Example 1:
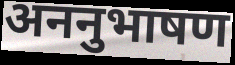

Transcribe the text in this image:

अननुभाषण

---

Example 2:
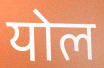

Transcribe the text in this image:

योल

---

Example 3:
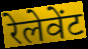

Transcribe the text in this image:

रेलेवेंट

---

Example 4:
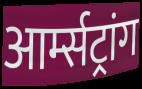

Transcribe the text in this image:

आर्म्सट्रांग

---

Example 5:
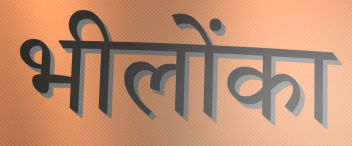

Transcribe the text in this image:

भीलोंका